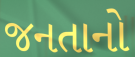
જનતાનો